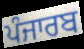
ਪੰਜਾਰਬ